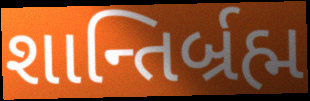
શાન્તિર્બ્રહ્મ